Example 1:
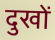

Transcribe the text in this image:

दुखों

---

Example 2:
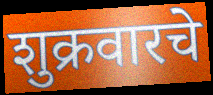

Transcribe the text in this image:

शुक्रवारचे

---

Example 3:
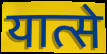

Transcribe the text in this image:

यात्से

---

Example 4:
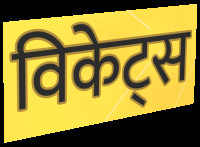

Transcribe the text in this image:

विकेट्स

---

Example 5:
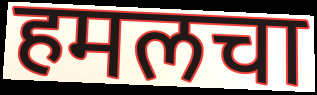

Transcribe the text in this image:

हमलचा